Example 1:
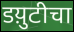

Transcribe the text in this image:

डय़ुटीचा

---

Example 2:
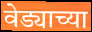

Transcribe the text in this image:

वेड्याच्या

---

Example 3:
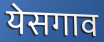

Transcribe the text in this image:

येसगाव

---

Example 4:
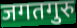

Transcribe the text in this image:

जगतगुरु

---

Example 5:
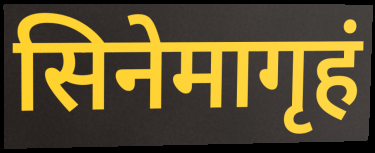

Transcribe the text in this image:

सिनेमागृहं